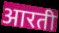
आरती